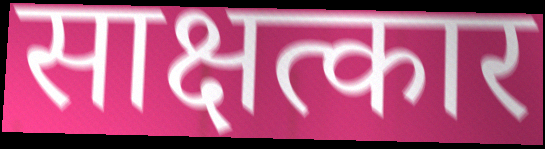
साक्षत्कार